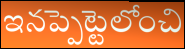
ఇనప్పెట్టెలోంచి